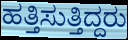
ಹತ್ತಿಸುತ್ತಿದ್ದರು